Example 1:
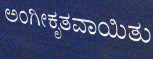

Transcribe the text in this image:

ಅಂಗೀಕೃತವಾಯಿತು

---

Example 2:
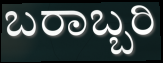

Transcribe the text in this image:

ಬರಾಬ್ಬರಿ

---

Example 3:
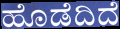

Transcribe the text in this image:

ಹೊಡೆದಿದೆ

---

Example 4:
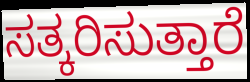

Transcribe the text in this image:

ಸತ್ಕರಿಸುತ್ತಾರೆ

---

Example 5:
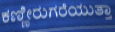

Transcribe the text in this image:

ಕಣ್ಣೀರುಗರೆಯುತ್ತಾ